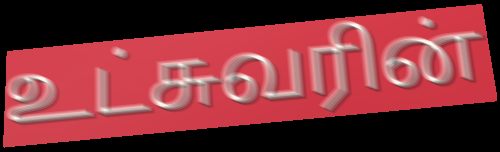
உட்சுவரின்